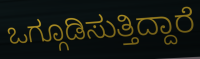
ಒಗ್ಗೂಡಿಸುತ್ತಿದ್ದಾರೆ